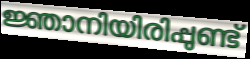
ജ്ഞാനിയിരിപ്പുണ്ട്